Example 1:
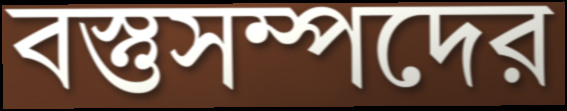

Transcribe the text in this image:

বস্তুসম্পদের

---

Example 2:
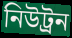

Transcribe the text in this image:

নিউট্রন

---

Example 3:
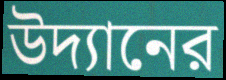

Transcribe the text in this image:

উদ্যানের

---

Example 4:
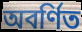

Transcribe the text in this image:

অবর্ণিত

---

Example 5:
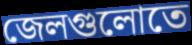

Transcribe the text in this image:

জেলগুলোতে